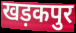
खड़कपुर